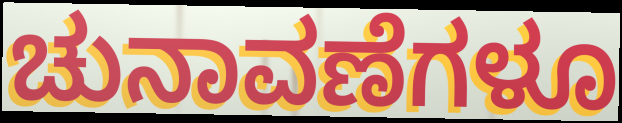
ಚುನಾವಣೆಗಳೂ